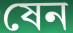
ষেন